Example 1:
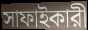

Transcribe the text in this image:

সাফাইকারী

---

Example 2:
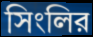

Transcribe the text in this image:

সিংলির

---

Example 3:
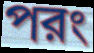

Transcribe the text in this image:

পরং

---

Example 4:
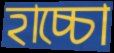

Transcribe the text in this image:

হাচ্চো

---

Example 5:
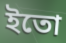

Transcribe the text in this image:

ইতো